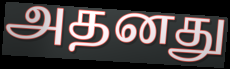
அதனது